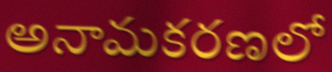
అనామకరణలో